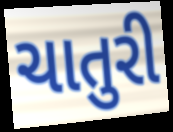
ચાતુરી